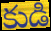
కుడి